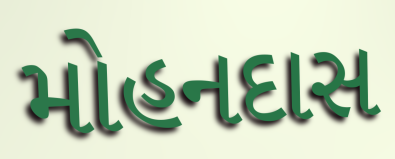
મોહનદાસ